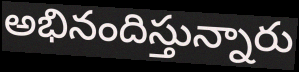
అభినందిస్తున్నారు